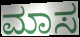
ಮಾಸ